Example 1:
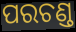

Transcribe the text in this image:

ପରଚଣ୍ଡ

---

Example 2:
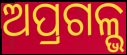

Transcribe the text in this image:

ଅପ୍ରଗଳ୍ଭ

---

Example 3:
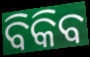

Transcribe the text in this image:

ବିକିବ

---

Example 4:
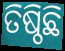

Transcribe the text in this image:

ତିଷ୍ଠିଛି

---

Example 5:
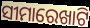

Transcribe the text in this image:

ସୀମାରେଖାଟି